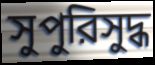
সুপুরিসুদ্ধ